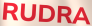
RUDRA